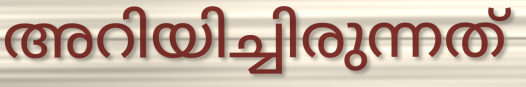
അറിയിച്ചിരുന്നത്